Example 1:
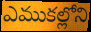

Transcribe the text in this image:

ఎముకల్లోని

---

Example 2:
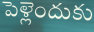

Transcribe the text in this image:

పెళ్లెందుకు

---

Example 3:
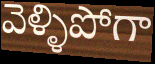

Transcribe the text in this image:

వెళ్ళిపోగా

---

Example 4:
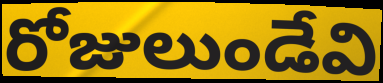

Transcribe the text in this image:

రోజులుండేవి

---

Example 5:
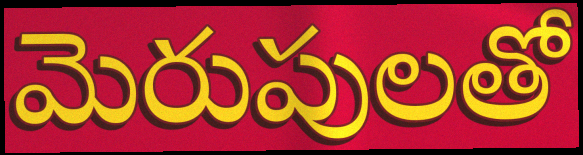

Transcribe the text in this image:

మెరుపులతో